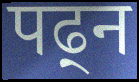
पढ्न